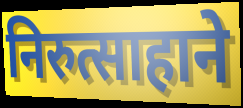
निरुत्साहाने